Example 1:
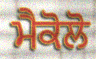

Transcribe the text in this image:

ਮੈਕੋਲੋ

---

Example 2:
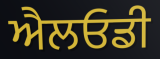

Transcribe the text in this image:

ਐਲਓਡੀ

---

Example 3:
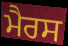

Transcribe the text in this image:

ਮੈਰਸ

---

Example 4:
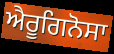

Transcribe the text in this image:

ਐਰੂਗਿਨੋਸਾ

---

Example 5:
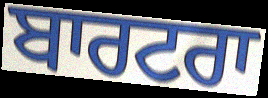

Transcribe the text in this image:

ਬਾਰਟਰਾ